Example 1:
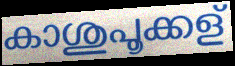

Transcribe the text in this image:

കാശുപൂക്കള്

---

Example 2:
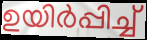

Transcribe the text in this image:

ഉയിർപ്പിച്ച്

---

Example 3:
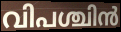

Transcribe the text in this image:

വിപശ്ചിൻ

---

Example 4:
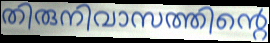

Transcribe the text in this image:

തിരുനിവാസത്തിന്റെ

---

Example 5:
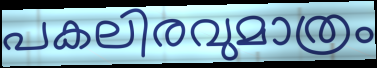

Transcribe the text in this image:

പകലിരവുമാത്രം